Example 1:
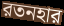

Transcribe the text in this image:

রতনহার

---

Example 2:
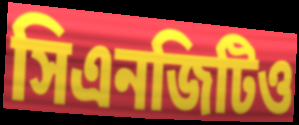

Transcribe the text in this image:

সিএনজিটিও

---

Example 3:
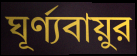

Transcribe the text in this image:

ঘূর্ণ্যবায়ুর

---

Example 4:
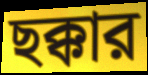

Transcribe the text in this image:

ছক্কার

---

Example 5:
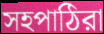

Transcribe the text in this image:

সহপাঠিরা